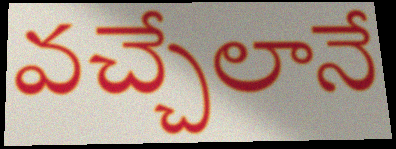
వచ్చేలానే